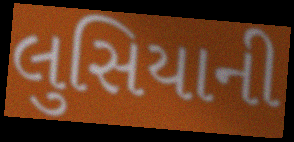
લુસિયાની